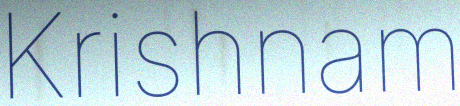
Krishnam